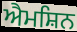
ਐਮਸ਼ਿਨ